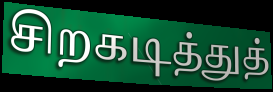
சிறகடித்துத்